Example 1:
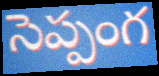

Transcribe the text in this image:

సెప్పంగ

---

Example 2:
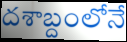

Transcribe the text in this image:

దశాబ్దంలోనే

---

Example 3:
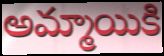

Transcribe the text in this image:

అమ్మాయికి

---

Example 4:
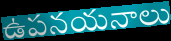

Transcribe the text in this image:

ఉపనయనాలు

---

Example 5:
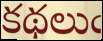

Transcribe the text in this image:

కథలుఁ